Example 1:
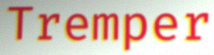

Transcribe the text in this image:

Tremper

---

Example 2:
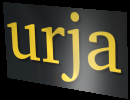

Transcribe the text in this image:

urja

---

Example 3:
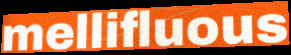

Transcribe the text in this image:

mellifluous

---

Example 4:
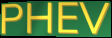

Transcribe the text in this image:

PHEV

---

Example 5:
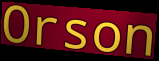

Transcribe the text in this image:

Orson